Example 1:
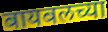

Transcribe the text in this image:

बायबलच्या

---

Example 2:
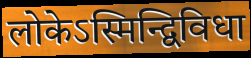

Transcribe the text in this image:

लोकेऽस्मिन्द्विविधा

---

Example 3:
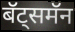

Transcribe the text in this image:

बॅट्समॅन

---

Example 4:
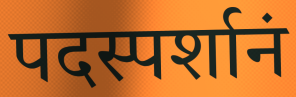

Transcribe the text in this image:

पदस्पर्शानं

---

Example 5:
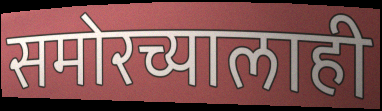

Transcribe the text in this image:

समोरच्यालाही